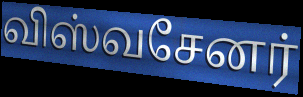
விஸ்வசேனர்